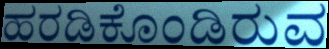
ಹರಡಿಕೊಂಡಿರುವ